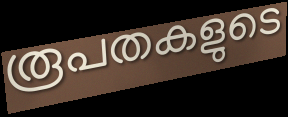
രൂപതകളുടെ